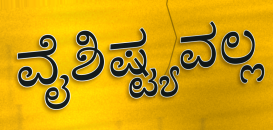
ವೈಶಿಷ್ಟ್ಯವಲ್ಲ